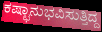
ಕಷ್ಟಾನುಭವಿಸುತ್ತಿದ್ದ